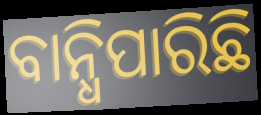
ବାନ୍ଧିପାରିଛି